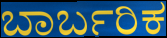
ಬಾರ್ಬರಿಕ